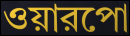
ওয়ারপো